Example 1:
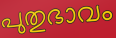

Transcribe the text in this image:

പുതുഭാവം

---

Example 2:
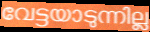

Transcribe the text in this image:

വേട്ടയാടുന്നില്ല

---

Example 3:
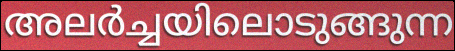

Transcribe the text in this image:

അലർച്ചയിലൊടുങ്ങുന്ന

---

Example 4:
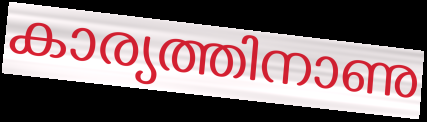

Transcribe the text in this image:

കാര്യത്തിനാണു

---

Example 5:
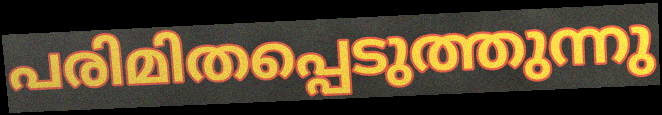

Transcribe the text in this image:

പരിമിതപ്പെടുത്തുന്നു